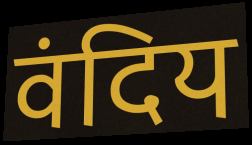
वंदिय